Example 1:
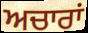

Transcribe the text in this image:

ਅਚਾਰਾਂ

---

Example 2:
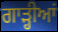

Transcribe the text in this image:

ਗਾੜ੍ਹੀਆਂ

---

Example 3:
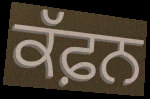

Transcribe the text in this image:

ਕੱਫ਼ਨ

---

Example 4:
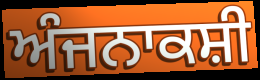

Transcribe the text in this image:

ਅੰਜਨਾਕਸ਼ੀ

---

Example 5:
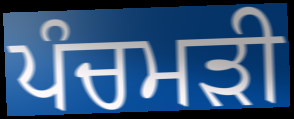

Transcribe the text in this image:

ਪੰਚਮੜੀ